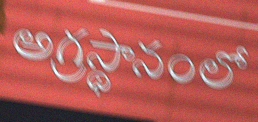
అగ్రస్థానంలో